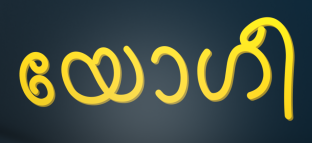
യോഗീ